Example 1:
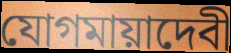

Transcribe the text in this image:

যোগমায়াদেবী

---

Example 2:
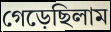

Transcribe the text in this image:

গেড়েছিলাম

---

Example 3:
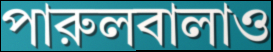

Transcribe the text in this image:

পারুলবালাও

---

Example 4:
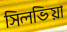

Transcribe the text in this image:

সিলভিয়া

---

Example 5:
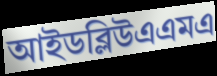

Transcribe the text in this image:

আইডব্লিউএএমএ